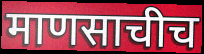
माणसाचीच